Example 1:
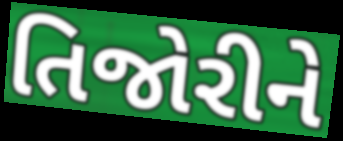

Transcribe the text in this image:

તિજોરીને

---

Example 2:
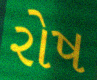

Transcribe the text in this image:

રોષ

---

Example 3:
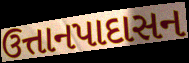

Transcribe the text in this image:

ઉત્તાનપાદાસન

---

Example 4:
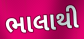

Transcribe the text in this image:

ભાલાથી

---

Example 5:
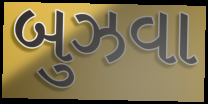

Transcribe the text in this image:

બુઝવા